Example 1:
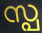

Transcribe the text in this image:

സ്പ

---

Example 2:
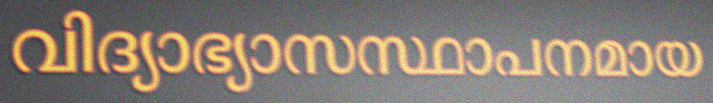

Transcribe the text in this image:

വിദ്യാഭ്യാസസ്ഥാപനമായ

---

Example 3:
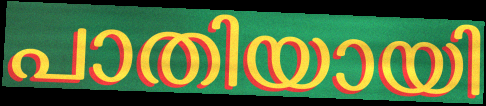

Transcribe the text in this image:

പാതിയായി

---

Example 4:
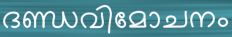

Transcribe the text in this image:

ദണ്ഡവിമോചനം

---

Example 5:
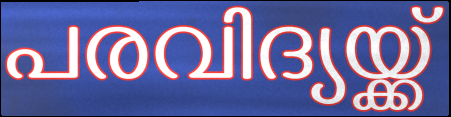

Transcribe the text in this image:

പരവിദ്യയ്ക്ക്